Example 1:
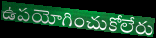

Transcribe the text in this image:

ఉపయోగించుకోలేరు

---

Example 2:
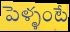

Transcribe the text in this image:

పెళ్ళంటే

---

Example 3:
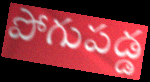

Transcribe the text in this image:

పోగుపడ్డ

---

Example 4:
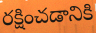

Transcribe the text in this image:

రక్షించడానికి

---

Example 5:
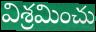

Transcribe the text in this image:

విశ్రమించు